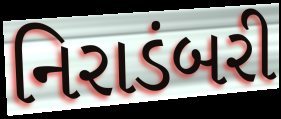
નિરાડંબરી